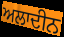
ਅਲਾਦੀਨ